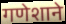
गणेशाने